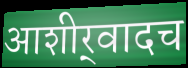
आशीर्वादच